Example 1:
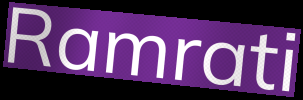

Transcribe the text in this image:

Ramrati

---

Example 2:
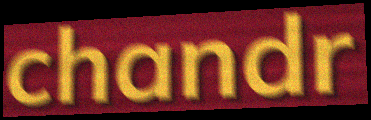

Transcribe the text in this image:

chandr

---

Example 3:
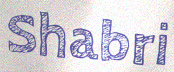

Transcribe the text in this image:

Shabri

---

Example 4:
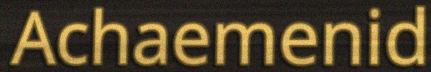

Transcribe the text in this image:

Achaemenid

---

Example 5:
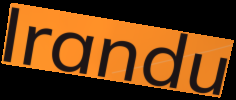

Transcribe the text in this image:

Irandu